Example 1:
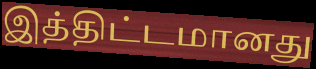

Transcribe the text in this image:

இத்திட்டமானது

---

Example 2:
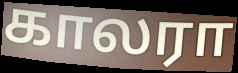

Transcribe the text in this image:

காலரா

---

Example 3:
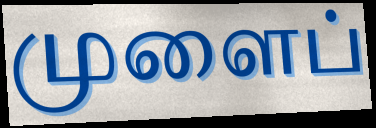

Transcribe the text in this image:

முளைப்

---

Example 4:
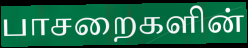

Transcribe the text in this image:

பாசறைகளின்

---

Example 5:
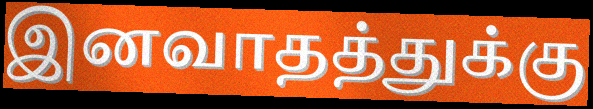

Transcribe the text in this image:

இனவாதத்துக்கு